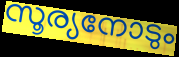
സൂര്യനോടും